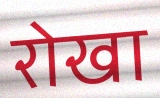
रोखा